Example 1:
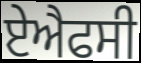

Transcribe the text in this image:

ਏਐਫਸੀ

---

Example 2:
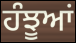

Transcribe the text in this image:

ਹੰਝੂਆਂ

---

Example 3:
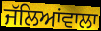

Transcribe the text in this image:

ਜੱਲਿਆਂਵਾਲਾ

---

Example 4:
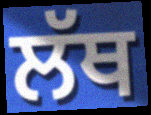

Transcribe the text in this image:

ਲੱਥ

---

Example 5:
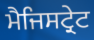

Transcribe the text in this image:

ਮੈਜਿਸਟ੍ਰੇਟ